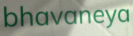
bhavaneya